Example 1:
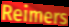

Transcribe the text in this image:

Reimers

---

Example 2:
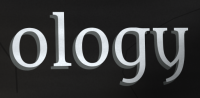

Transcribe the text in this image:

ology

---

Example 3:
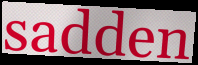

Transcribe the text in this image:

sadden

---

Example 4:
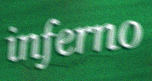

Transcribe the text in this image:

inferno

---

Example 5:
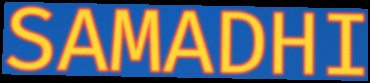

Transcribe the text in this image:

SAMADHI